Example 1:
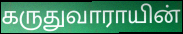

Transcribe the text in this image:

கருதுவாராயின்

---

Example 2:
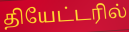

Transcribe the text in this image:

தியேட்டரில்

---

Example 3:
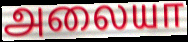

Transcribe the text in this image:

அலையா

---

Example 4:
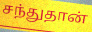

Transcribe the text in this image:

சந்துதான்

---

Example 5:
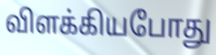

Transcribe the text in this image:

விளக்கியபோது